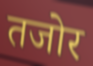
तजोर